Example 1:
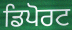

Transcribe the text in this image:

ਡਿਪੋਰਟ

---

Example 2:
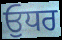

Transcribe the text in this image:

ਓੁਧਰ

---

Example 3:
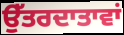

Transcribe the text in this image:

ਉੱਤਰਦਾਤਾਵਾਂ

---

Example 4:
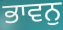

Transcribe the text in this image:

ਭਾਵਨੁ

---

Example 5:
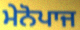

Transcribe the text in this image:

ਮੇਨੋਪਾਜ